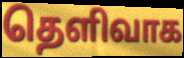
தெளிவாக